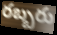
రబ్బరు